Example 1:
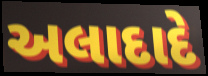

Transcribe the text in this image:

અલાદાદે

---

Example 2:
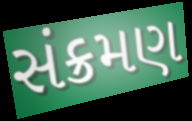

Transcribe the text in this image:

સંક્રમણ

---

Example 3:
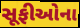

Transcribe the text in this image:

સૂફીઓના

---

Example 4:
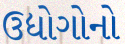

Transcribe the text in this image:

ઉદ્યોગોનો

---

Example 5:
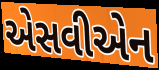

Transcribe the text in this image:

એસવીએન